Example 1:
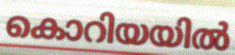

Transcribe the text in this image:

കൊറിയയിൽ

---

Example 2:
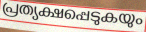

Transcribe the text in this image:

പ്രത്യക്ഷപ്പെടുകയും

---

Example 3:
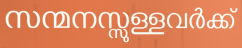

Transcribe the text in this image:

സന്മനസ്സുള്ളവർക്ക്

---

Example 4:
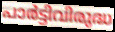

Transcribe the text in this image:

പാർട്ടിവിരുദ്ധ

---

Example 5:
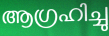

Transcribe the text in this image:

ആഗ്രഹിച്ചു